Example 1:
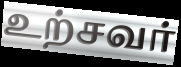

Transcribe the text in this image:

உற்சவர்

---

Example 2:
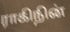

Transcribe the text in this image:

ராகிநின்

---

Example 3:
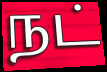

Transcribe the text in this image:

நட்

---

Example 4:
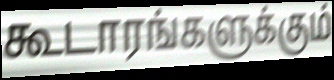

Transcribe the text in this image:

கூடாரங்களுக்கும்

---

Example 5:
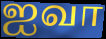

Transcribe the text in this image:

ஐவா